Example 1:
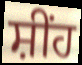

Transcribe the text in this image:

ਸ਼ੀਂਹ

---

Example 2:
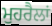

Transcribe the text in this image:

ਮੁਹਰੈਲਾਂ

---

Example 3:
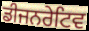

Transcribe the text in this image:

ਡੀਜਨਰੇਟਿਵ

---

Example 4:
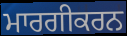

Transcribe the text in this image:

ਮਾਰਗੀਕਰਨ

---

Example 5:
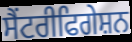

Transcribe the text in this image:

ਸੈਂਟਰੀਫਿਗੇਸ਼ਨ